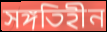
সঙ্গতিহীন